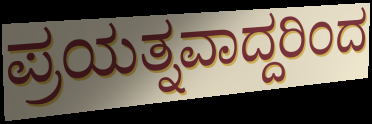
ಪ್ರಯತ್ನವಾದ್ದರಿಂದ